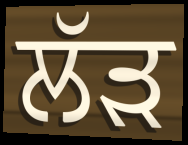
ਲੱੜ